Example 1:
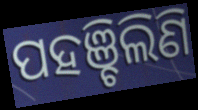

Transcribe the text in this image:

ପହଞ୍ଚିଲିଣି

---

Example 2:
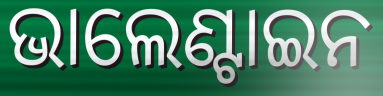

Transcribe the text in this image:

ଭାଲେଣ୍ଟାଇନ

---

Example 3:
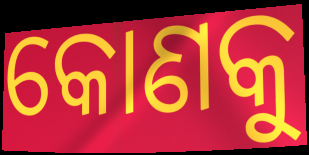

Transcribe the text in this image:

କୋଣକୁ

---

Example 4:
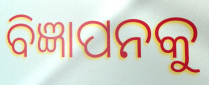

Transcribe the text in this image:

ବିଜ୍ଞାପନକୁ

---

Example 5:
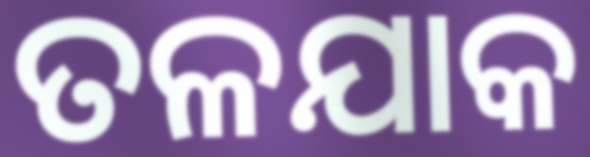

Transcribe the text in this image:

ତଳଯାକ